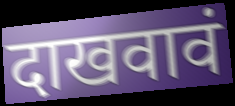
दाखवावं